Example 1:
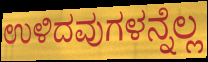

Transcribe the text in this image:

ಉಳಿದವುಗಳನ್ನೆಲ್ಲ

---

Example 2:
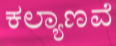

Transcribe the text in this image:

ಕಲ್ಯಾಣವೆ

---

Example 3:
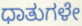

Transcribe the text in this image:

ಧಾತುಗಳೇ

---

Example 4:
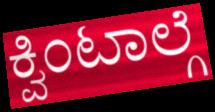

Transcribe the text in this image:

ಕ್ವಿಂಟಾಲ್ಗೆ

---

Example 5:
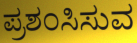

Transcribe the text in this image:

ಪ್ರಶಂಸಿಸುವ